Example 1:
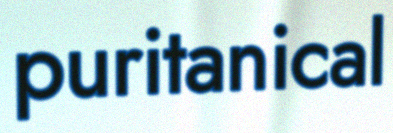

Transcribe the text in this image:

puritanical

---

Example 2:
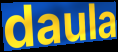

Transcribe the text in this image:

daula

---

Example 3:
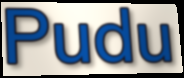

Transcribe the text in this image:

Pudu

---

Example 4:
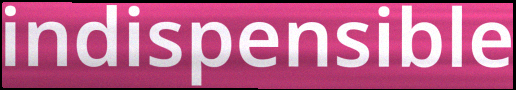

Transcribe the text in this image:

indispensible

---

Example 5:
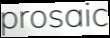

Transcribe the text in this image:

prosaic